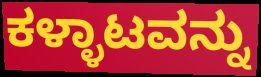
ಕಳ್ಳಾಟವನ್ನು